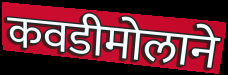
कवडीमोलाने